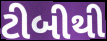
ટીબીથી